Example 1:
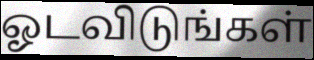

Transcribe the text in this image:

ஓடவிடுங்கள்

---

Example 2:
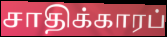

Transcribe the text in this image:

சாதிக்காரப்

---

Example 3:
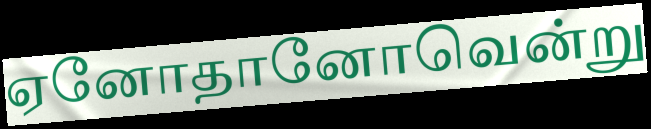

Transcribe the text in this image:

ஏனோதானோவென்று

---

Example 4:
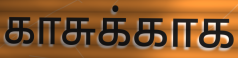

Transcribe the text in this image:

காசுக்காக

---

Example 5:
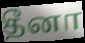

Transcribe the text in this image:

தீனா